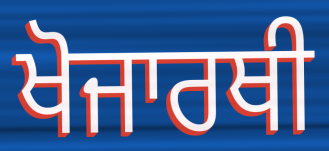
ਖੋਜਾਰਥੀ